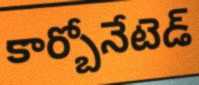
కార్బోనేటెడ్